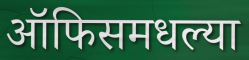
ऑफिसमधल्या